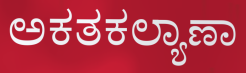
ಅಕತಕಲ್ಯಾಣಾ